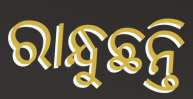
ରାନ୍ଧୁଛନ୍ତି